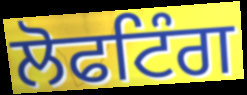
ਲੋਫਟਿੰਗ